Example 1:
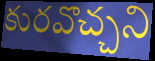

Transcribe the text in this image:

కురవొచ్చని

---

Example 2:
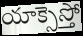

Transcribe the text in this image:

యాక్సెస్తో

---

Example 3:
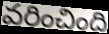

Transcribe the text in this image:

వరించింది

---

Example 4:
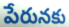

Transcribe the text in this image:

పేరునకు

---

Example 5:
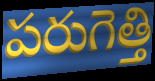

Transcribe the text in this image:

పరుగెత్తి